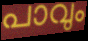
പാവും